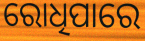
ରୋଧିପାରେ